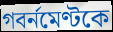
গবর্নমেণ্টকে